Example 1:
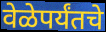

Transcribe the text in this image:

वेळेपर्यंतचे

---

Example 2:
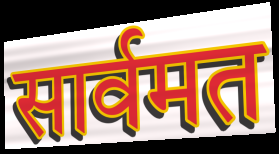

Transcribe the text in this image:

सार्वमत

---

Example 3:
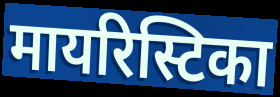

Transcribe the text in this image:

मायरिस्टिका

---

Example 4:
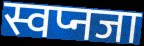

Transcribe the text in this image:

स्वप्नजा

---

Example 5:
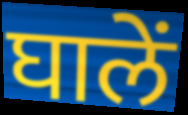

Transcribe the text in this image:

घालें